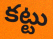
కట్టు